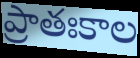
ప్రాతఃకాల